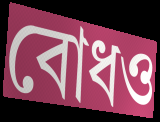
বোধও